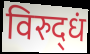
विरुद्धं